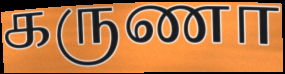
கருணா